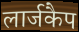
लार्जकैप